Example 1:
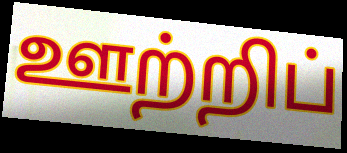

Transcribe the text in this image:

ஊற்றிப்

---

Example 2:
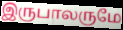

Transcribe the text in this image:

இருபாலருமே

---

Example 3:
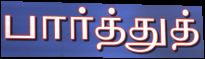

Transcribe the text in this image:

பார்த்துத்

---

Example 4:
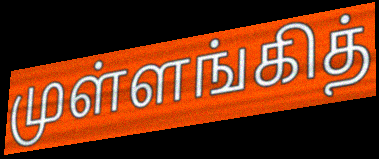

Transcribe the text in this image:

முள்ளங்கித்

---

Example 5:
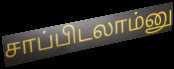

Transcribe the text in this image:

சாப்பிடலாம்னு